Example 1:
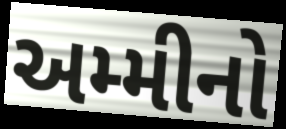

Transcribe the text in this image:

અમ્મીનો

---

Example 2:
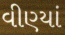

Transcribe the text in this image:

વીણ્યાં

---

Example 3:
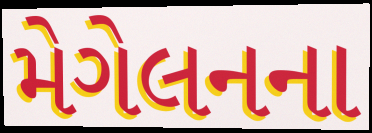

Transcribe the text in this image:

મેગેલનના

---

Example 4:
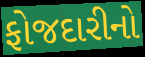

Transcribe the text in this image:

ફોજદારીનો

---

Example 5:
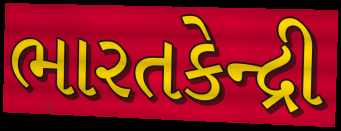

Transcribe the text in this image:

ભારતકેન્દ્રી